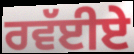
ਰਵੱਈਏ